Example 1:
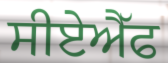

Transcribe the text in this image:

ਸੀਏਐੱਫ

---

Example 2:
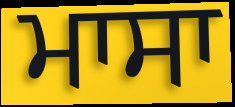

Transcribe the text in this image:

ਮਾਸਾ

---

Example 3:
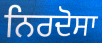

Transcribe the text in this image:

ਨਿਰਦੋਸਾ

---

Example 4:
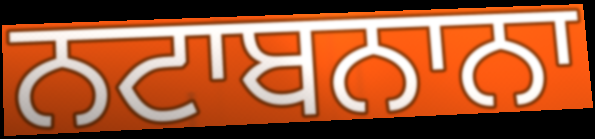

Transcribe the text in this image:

ਨਟਾਬਨਾਨਾ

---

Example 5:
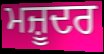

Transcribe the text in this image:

ਮਜ਼ੂਦਰ